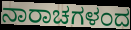
ನಾರಾಚಗಳಂದ